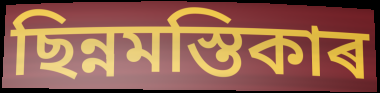
ছিন্নমস্তিকাৰ